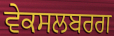
ਵੇਕਸਲਬਰਗ